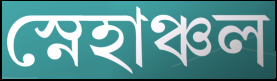
স্নেহাঞ্চল